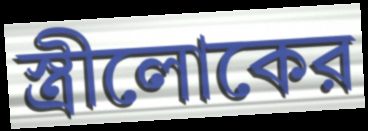
স্ত্রীলোকের